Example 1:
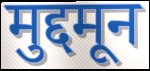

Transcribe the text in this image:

मुद्दमून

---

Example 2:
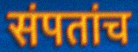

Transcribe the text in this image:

संपतांच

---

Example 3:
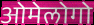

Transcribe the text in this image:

ओमेलोगो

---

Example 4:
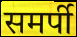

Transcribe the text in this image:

समर्पी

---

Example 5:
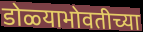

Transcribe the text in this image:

डोळ्याभोवतीच्या